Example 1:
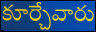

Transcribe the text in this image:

కూర్చేవారు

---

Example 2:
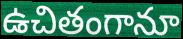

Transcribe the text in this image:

ఉచితంగానూ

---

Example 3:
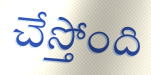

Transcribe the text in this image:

చేస్తోంది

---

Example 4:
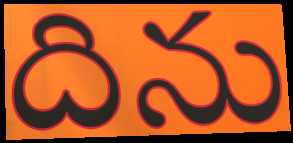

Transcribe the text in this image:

దిను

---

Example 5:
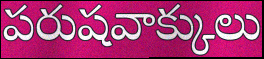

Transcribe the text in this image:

పరుషవాక్కులు